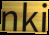
nki